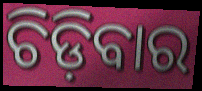
ଚିଡ଼ିବାର